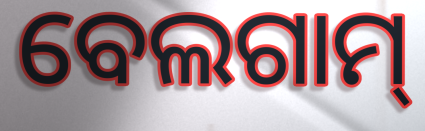
ବେଲଗାମ୍